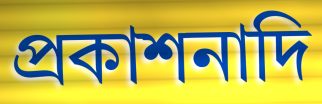
প্রকাশনাদি